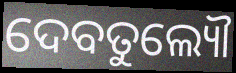
ଦେବତୁଲ୍ୟୌ